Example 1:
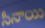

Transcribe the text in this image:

సీనాయి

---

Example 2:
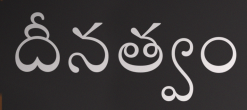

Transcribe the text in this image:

దీనత్వం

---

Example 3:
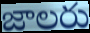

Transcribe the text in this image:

జాలరు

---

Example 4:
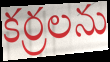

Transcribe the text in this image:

కర్రలను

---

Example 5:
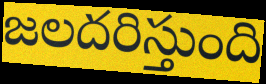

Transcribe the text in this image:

జలదరిస్తుంది